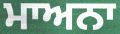
ਮਾਅਨਾ